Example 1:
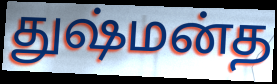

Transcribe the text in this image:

துஷ்மன்த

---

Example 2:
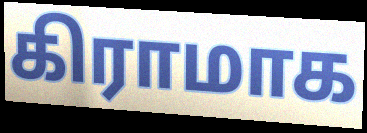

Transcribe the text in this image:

கிராமாக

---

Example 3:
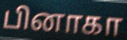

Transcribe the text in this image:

பினாகா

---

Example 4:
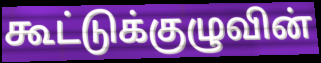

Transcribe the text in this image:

கூட்டுக்குழுவின்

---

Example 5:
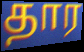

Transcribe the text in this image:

தார